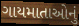
ગાયમાતાઓનું